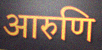
आरुणि